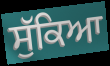
ਸੁੱਕਿਆ